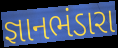
જ્ઞાનભંડારા